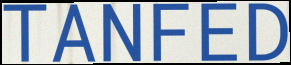
TANFED